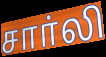
சார்லி